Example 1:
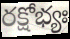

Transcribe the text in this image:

రక్షోభ్యః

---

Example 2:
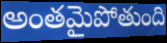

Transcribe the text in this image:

అంతమైపోతుంది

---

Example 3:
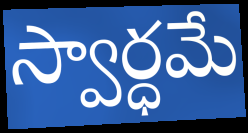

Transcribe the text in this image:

స్వార్ధమే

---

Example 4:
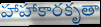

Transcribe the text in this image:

హాహాకారకృతా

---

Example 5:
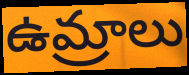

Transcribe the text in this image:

ఉమ్రాలు